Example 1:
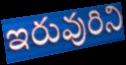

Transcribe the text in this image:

ఇరువురిని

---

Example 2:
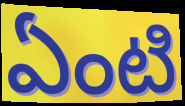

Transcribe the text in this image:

ఏంటి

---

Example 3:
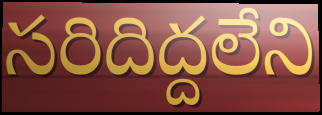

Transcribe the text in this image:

సరిదిద్దలేని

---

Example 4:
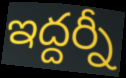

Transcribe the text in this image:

ఇద్దర్నీ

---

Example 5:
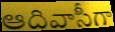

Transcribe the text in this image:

ఆదివాసీగా